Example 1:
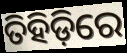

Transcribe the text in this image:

ତିହିଡ଼ିରେ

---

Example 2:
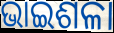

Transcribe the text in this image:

ଭାଇଶଳା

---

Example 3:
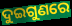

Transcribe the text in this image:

ଦୁଇଗୁଣରେ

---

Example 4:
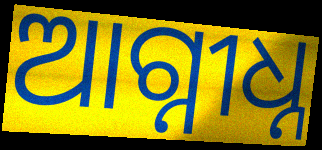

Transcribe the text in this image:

ଆଗ୍ନୀଧ୍ନ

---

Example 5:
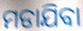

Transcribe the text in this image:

ମଡାଯିବା